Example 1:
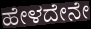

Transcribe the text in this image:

ಹೇಳದೇನೇ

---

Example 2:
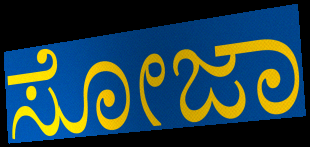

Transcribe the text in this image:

ಸೋಜಾ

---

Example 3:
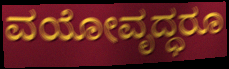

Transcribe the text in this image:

ವಯೋವೃದ್ಧರೂ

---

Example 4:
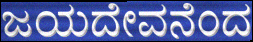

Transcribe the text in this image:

ಜಯದೇವನೆಂದ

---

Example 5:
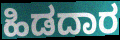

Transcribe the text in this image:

ಹಿಡದಾರ